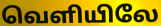
வெளியிலே